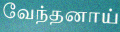
வேந்தனாய்